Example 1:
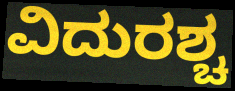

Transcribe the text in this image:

ವಿದುರಶ್ಚ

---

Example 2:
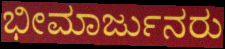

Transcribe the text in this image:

ಭೀಮಾರ್ಜುನರು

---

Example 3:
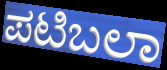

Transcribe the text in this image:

ಪಟಿಬಲಾ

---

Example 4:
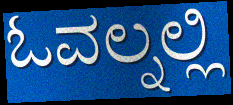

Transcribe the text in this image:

ಓವಲ್ನಲ್ಲಿ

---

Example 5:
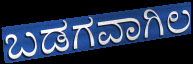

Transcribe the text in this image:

ಬಡಗವಾಗಿಲ